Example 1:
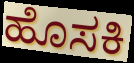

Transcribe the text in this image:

ಹೊಸಕಿ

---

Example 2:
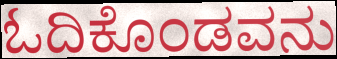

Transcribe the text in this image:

ಓದಿಕೊಂಡವನು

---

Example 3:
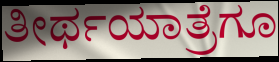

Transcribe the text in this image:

ತೀರ್ಥಯಾತ್ರೆಗೂ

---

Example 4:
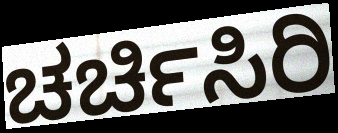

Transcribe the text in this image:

ಚರ್ಚಿಸಿರಿ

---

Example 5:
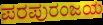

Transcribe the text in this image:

ಪರಪುರಂಜಯ